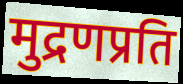
मुद्रणप्रति